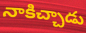
నాకిచ్చాడు